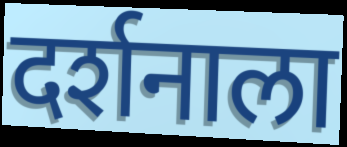
दर्शनाला